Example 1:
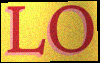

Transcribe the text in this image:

LO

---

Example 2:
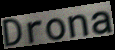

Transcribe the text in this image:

Drona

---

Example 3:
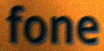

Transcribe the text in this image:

fone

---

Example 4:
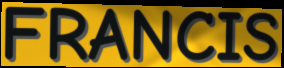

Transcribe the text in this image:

FRANCIS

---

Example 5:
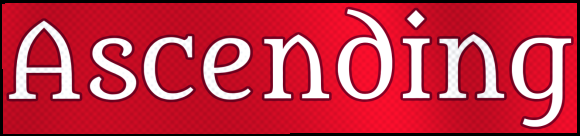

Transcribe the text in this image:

Ascending